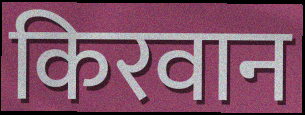
किरवान